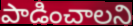
పాడించాలని